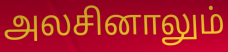
அலசினாலும்